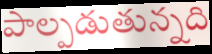
పాల్పడుతున్నది